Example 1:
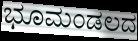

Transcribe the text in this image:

ಭೂಮಂಡಲದ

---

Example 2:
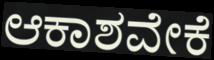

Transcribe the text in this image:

ಆಕಾಶವೇಕೆ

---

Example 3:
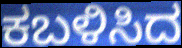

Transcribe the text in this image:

ಕಬಳಿಸಿದ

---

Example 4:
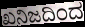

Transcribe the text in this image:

ಖನಿಜದಿಂದ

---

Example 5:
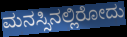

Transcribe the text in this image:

ಮನಸ್ಸಿನಲ್ಲಿರೋದು